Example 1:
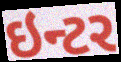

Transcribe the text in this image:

ઇન્ટર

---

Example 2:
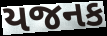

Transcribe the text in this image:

યજનક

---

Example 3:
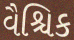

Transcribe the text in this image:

વૈશ્ચિક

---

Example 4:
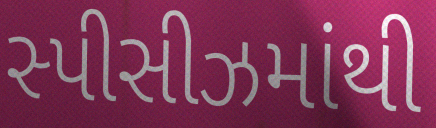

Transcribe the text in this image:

સ્પીસીઝમાંથી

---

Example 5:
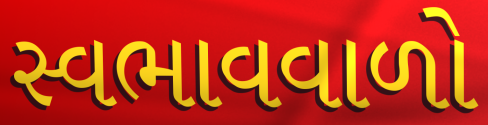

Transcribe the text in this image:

સ્વભાવવાળો